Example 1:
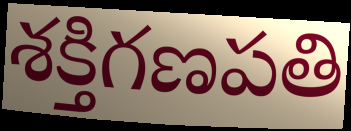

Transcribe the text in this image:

శక్తిగణపతి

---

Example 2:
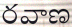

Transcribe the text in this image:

రవాణ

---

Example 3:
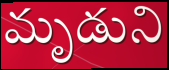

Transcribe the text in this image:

మృడుని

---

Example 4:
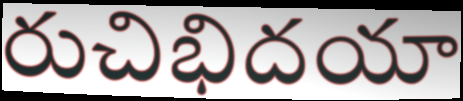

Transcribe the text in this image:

రుచిభిదయా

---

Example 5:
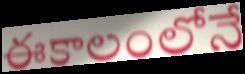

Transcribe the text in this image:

ఈకాలంలోనే